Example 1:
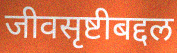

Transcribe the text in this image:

जीवसृष्टीबद्दल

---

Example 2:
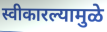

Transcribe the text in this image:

स्वीकारल्यामुळे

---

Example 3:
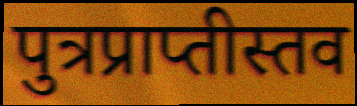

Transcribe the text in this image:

पुत्रप्राप्तीस्तव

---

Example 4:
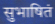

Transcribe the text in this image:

सुभाषितं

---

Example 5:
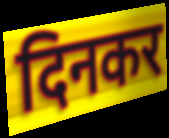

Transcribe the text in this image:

दिनकर